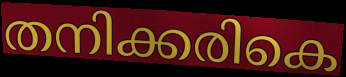
തനിക്കരികെ